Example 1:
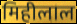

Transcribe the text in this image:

मिहीलाल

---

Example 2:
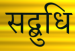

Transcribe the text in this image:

सद्बुधि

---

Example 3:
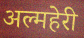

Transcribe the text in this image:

अल्महेरी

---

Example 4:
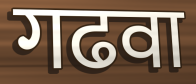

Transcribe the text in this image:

गढवा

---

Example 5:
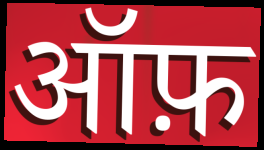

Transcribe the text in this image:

ऑफ़